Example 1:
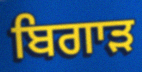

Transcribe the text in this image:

ਬਿਗਾੜ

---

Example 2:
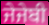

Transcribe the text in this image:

ਜੇਜੇਬੀ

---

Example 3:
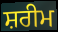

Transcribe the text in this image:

ਸ਼ਰੀਮ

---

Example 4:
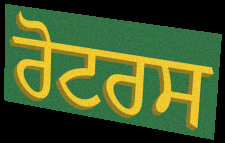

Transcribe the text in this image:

ਰੋਟਰਸ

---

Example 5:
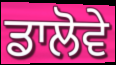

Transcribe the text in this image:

ਡਾਲੋਵੇ